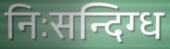
निःसन्दिग्ध